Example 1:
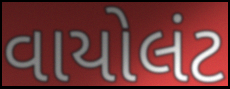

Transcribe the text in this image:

વાયોલંટ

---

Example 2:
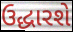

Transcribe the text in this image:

ઉદ્ધારશે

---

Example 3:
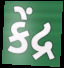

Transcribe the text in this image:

કેંદ્ર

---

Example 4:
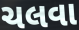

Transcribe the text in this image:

ચલવા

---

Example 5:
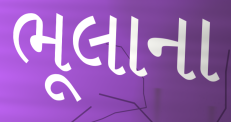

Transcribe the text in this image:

ભૂલાના